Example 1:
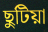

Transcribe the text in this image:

ছুটিয়া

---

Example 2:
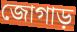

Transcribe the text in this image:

জোগাড়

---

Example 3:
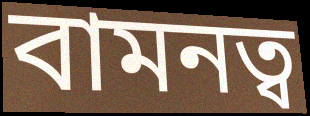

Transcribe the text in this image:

বামনত্ব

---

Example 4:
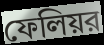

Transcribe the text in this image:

ফেলিয়র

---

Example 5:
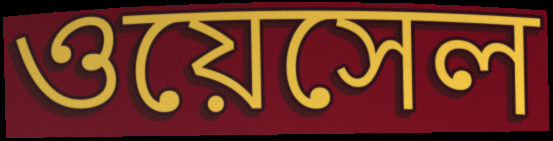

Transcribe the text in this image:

ওয়েসেল